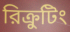
রিক্রুটিং